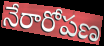
నేరారోపణ